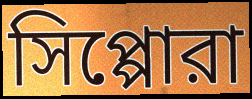
সিপ্পোরা